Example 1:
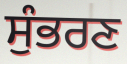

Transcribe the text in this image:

ਸੁੰਭਰਣ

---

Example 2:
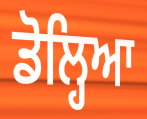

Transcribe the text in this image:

ਡੋਲ੍ਹਿਆ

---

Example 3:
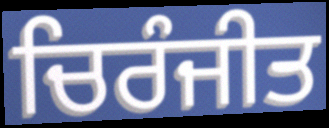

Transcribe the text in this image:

ਚਿਰੰਜੀਤ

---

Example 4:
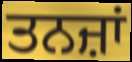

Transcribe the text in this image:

ਤਨਜ਼ਾਂ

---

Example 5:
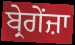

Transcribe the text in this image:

ਬ੍ਰੇਗੇਂਜ਼ਾ